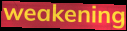
weakening